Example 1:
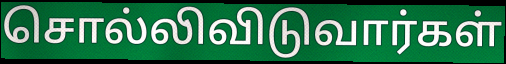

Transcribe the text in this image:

சொல்லிவிடுவார்கள்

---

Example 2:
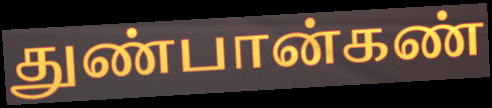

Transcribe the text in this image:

துண்பான்கண்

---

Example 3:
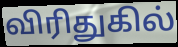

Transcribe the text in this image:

விரிதுகில்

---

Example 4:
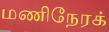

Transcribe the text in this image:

மணிநேரக்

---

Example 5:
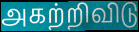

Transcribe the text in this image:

அகற்றிவிடு